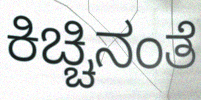
ಕಿಚ್ಚಿನಂತೆ